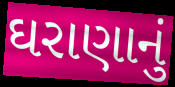
ઘરાણાનું